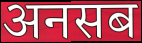
अनसब